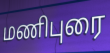
மணிபுரை